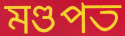
মণ্ডপত